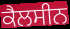
ਕੈਲਸੀਨ